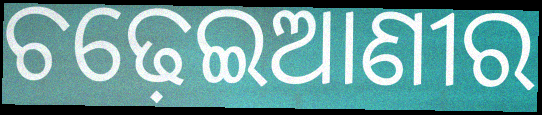
ଚଢ଼େଇଆଣୀର